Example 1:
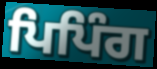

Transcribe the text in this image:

ਪਿਪਿੰਗ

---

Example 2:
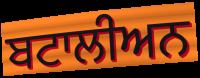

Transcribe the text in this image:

ਬਟਾਲੀਅਨ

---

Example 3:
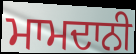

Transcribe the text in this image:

ਮਾਮਦਾਨੀ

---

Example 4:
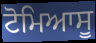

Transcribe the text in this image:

ਟੋਮਿਆਸੂ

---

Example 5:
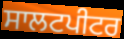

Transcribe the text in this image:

ਸਾਲਟਪੀਟਰ